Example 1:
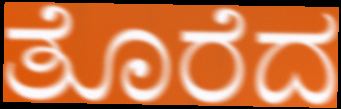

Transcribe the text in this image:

ತೊರೆದ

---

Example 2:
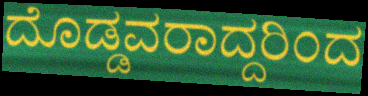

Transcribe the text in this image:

ದೊಡ್ಡವರಾದ್ದರಿಂದ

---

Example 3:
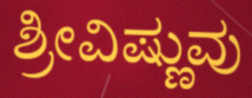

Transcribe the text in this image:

ಶ್ರೀವಿಷ್ಣುವು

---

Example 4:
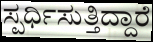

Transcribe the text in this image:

ಸ್ಪರ್ಧಿಸುತ್ತಿದ್ದಾರೆ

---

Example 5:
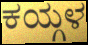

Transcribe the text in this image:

ಕಯ್ಗಳ